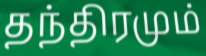
தந்திரமும்